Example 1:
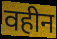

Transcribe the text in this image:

वहीन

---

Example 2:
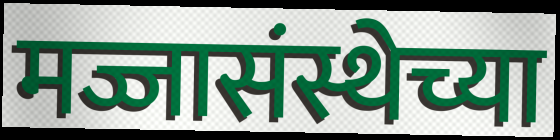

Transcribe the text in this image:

मज्जासंस्थेच्या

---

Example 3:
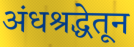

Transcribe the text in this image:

अंधश्रद्धेतून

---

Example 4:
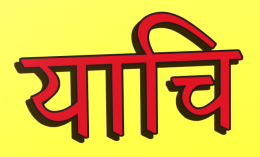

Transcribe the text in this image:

याचि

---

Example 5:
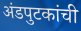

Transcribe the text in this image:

अंडपुटकांची